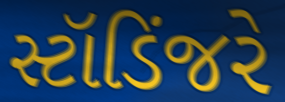
સ્ટૉડિંજરે